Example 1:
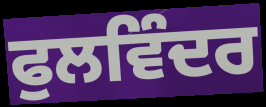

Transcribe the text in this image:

ਫੁਲਵਿੰਦਰ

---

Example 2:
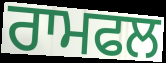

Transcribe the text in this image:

ਰਾਮਫਲ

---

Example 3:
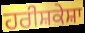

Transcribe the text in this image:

ਹਰੀਸ਼ਕੇਸ਼ਾ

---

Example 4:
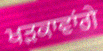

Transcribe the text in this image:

ਖੜਕਾਵਾਂਗੇ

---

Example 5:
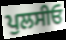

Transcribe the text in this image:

ਪੁਲਸੀਓ